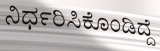
ನಿರ್ಧರಿಸಿಕೊಂಡಿದ್ದೆ